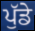
ਪੁੱਡੇ